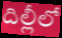
దిల్లీలో